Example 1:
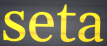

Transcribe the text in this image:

seta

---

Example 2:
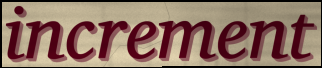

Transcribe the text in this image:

increment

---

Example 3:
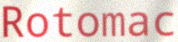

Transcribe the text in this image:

Rotomac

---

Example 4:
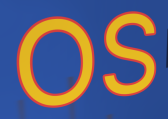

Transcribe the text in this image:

OS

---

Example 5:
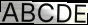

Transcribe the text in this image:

ABCDE